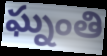
ఘ్నంతి